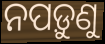
ନପଡ଼ୁଣୁ